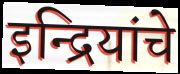
इन्द्रियांचे